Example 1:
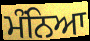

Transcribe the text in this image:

ਮੰਂਨਿਆ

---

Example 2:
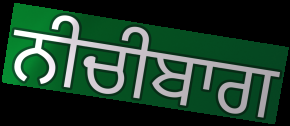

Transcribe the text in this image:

ਨੀਚੀਬਾਗ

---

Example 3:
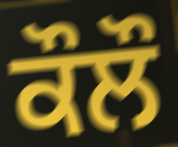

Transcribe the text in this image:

ਕੌਲੌ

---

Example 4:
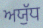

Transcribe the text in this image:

ਅਯੁੱਧ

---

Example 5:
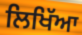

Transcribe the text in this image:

ਲਿਖਿੱਆ